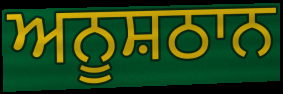
ਅਨੂਸ਼ਠਾਨ